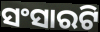
ସଂସାରଟି